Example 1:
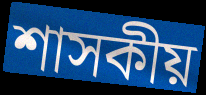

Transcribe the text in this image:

শাসকীয়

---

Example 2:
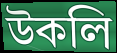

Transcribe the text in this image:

উকলি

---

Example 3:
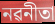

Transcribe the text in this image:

নৱনীতা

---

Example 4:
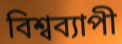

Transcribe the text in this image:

বিশ্বব্যাপী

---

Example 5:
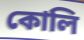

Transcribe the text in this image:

কোলি